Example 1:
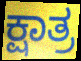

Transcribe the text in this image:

ಕ್ಷಾತ್ರ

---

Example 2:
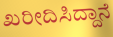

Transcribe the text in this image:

ಖರೀದಿಸಿದ್ದಾನೆ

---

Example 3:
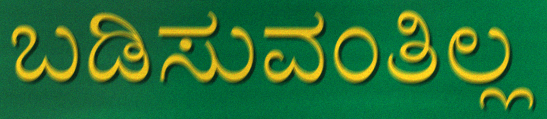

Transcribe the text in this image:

ಬಡಿಸುವಂತಿಲ್ಲ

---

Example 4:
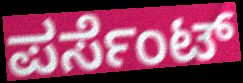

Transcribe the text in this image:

ಪರ್ಸೆಂಟ್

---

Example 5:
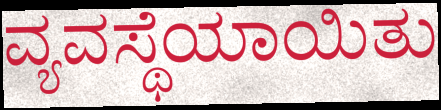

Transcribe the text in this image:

ವ್ಯವಸ್ಥೆಯಾಯಿತು